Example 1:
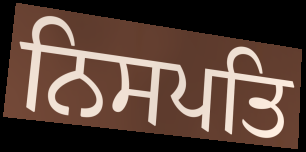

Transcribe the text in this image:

ਨਿਸਪਤਿ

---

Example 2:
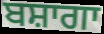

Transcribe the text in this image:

ਬਸ਼ਾਗਾ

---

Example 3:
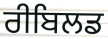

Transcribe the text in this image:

ਰੀਬਿਲਡ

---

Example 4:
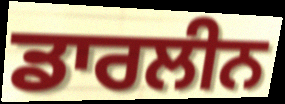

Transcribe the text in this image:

ਡਾਰਲੀਨ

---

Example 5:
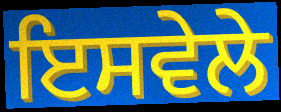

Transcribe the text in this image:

ਇਸਵੇਲੇ